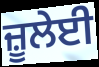
ਜ਼ੂਲੇਈ